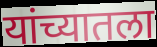
यांच्यातला